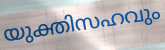
യുക്തിസഹവും